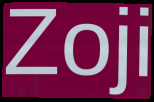
Zoji